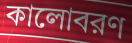
কালোবরণ